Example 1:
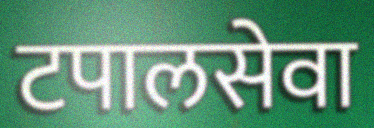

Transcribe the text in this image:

टपालसेवा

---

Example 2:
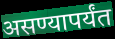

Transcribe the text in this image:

असण्यापर्यंत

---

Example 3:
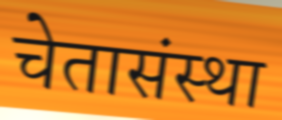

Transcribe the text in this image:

चेतासंस्था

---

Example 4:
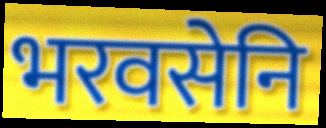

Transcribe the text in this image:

भरवसेनि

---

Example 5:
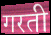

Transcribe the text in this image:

गरती